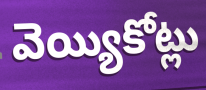
వెయ్యికోట్లు